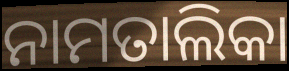
ନାମତାଲିକା